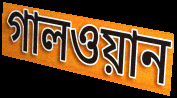
গালওয়ান